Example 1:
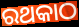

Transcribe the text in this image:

ରଥକାଠ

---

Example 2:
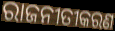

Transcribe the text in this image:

ରାଜନୀତୀକରଣ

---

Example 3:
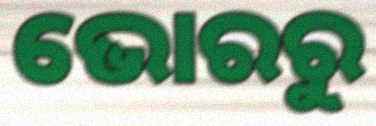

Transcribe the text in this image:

ଭୋରରୁ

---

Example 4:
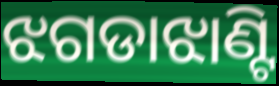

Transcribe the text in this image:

ଝଗଡାଝାଣ୍ଟି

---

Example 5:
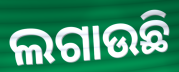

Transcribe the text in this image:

ଲଗାଉଛି